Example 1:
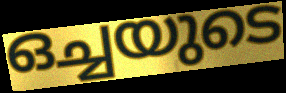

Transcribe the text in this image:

ഒച്ചയുടെ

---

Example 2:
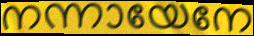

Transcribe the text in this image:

നന്നായേനേ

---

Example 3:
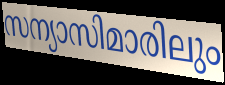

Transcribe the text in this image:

സന്യാസിമാരിലും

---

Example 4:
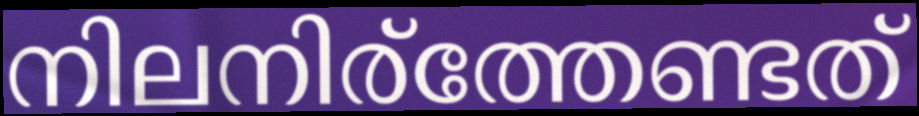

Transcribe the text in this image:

നിലനിര്ത്തേണ്ടത്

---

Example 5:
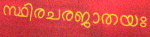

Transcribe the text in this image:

സ്ഥിരചരജാതയഃ